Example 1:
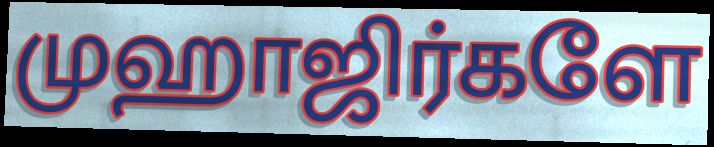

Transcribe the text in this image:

முஹாஜிர்களே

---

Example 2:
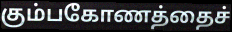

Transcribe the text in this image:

கும்பகோணத்தைச்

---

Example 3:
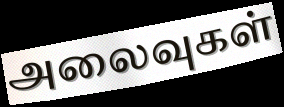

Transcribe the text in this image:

அலைவுகள்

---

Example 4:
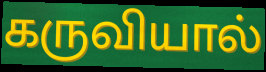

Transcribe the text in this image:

கருவியால்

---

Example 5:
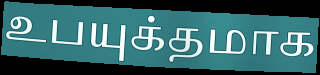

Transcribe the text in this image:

உபயுக்தமாக